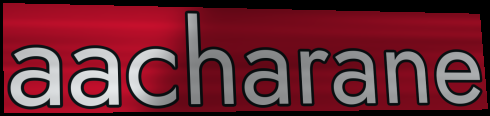
aacharane